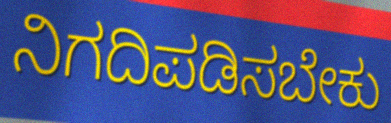
ನಿಗದಿಪಡಿಸಬೇಕು